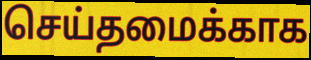
செய்தமைக்காக